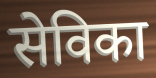
सेविका